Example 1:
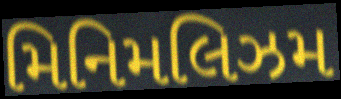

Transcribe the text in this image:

મિનિમલિઝમ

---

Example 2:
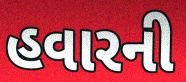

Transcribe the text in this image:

હવારની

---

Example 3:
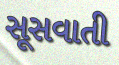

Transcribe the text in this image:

સૂસવાતી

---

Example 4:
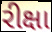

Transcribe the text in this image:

રીક્ષા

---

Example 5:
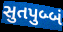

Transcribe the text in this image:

સુતપુબ્બં